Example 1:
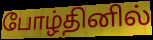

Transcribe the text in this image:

போழ்தினில்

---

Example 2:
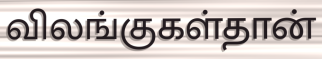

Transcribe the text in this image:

விலங்குகள்தான்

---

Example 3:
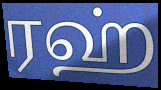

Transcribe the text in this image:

ரஹ்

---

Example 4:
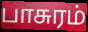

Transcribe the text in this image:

பாசுரம்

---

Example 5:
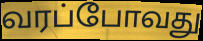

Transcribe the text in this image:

வரப்போவது